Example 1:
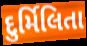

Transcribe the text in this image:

દુર્મિલિતા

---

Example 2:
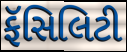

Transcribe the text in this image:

ફૅસિલિટી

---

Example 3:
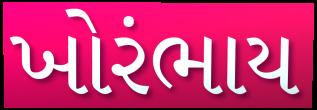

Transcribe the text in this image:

ખોરંભાય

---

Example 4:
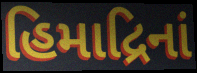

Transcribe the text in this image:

હિમાદ્રિનાં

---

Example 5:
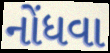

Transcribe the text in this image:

નોંધવા